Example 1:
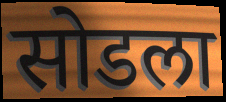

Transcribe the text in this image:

सोडला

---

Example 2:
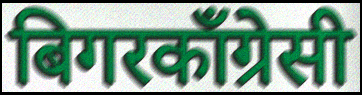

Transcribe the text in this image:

बिगरकाँग्रेसी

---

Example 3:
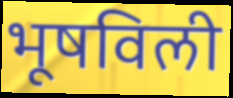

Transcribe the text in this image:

भूषविली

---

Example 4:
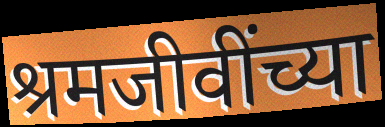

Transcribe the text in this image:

श्रमजीवींच्या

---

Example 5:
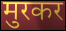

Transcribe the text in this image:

मुरकर